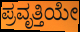
ಪ್ರವೃತ್ತಿಯೇ